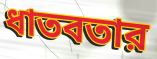
ধাতবতার